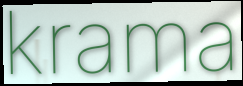
krama